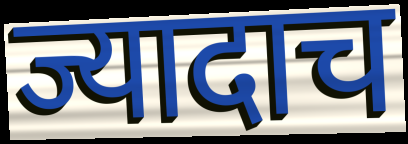
ज्यादाच